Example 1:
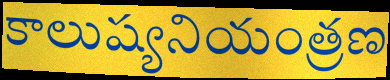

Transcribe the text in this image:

కాలుష్యనియంత్రణ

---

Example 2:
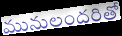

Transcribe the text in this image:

మునులందరితో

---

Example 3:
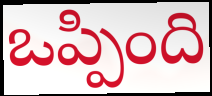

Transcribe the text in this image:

ఒప్పింది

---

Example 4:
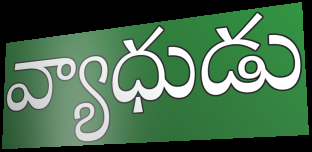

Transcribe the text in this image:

వ్యాధుడు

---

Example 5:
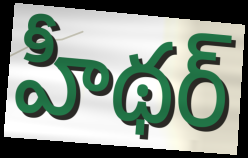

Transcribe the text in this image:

హీథర్